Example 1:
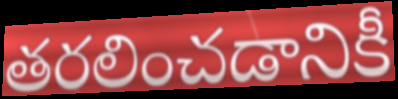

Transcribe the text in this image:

తరలించడానికీ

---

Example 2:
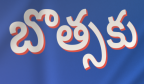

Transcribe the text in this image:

బొత్సకు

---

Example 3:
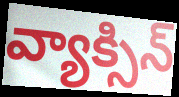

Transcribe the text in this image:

వ్యాక్సిన్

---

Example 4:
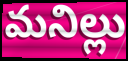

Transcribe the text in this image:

మనిల్లు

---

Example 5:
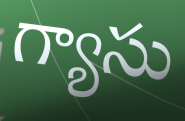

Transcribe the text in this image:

గ్యాసు